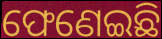
ଫେଣେଇଛି